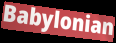
Babylonian